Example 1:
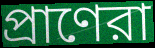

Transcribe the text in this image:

প্রাণেরা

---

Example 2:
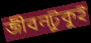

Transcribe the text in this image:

জীবনটুকুই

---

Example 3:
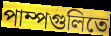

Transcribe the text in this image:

পাম্পগুলিতে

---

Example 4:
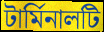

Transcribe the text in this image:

টার্মিনালটি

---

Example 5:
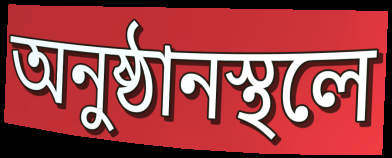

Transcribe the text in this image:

অনুষ্ঠানস্থলে